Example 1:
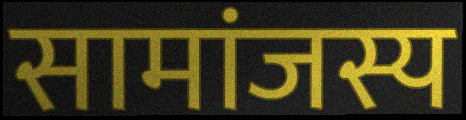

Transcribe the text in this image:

सामांजस्य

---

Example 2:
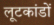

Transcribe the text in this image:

लूटकांडों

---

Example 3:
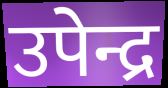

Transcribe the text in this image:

उपेन्द्र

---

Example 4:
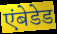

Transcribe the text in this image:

एंबेडेड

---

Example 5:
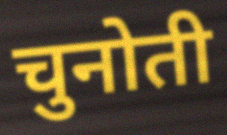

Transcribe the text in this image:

चुनोती